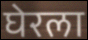
घेरला